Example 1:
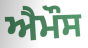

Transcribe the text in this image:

ਐਮੌਸ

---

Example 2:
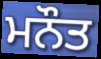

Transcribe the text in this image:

ਮਨੌਤ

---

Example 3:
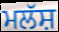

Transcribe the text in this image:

ਮਲੱਸ਼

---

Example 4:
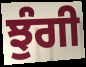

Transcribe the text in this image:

ਝੁੰਗੀ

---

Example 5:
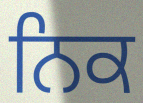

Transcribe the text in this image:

ਨਿਕ